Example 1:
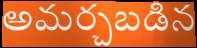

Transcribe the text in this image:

అమర్చబడిన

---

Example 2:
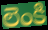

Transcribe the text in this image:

లెంకి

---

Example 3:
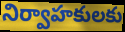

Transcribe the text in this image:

నిర్వాహకులకు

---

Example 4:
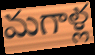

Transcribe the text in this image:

మగాళ్ల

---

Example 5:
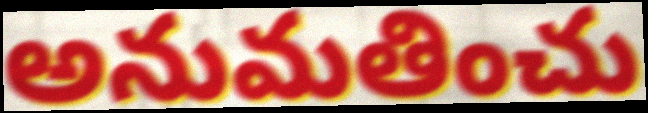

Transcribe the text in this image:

అనుమతించు